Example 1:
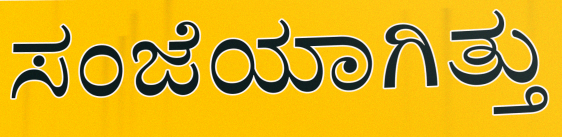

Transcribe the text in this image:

ಸಂಜೆಯಾಗಿತ್ತು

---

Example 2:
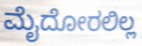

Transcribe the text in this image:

ಮೈದೋರಲಿಲ್ಲ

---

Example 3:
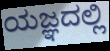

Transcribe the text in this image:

ಯಜ್ಞದಲ್ಲಿ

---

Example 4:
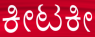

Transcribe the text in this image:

ಕೀಟಕೀ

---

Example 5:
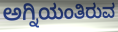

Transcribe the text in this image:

ಅಗ್ನಿಯಂತಿರುವ